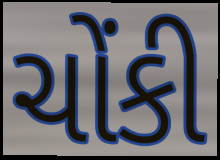
ચોંકી